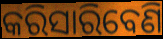
କରିସାରିବେଣି